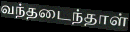
வந்தடைந்தாள்